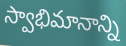
స్వాభిమానాన్ని